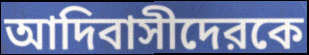
আদিবাসীদেরকে